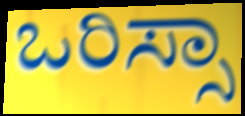
ಒರಿಸ್ಸಾ